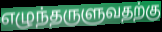
எழுந்தருளுவதற்கு